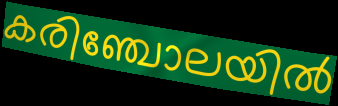
കരിഞ്ചോലയിൽ